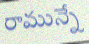
రామున్నే